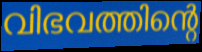
വിഭവത്തിന്റെ